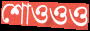
শোওওও